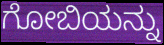
ಗೋಬಿಯನ್ನು